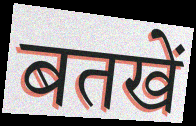
बतखें